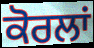
ਕੋਰਲਾਂ